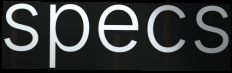
specs